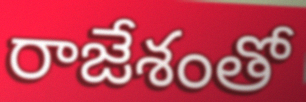
రాజేశంతో